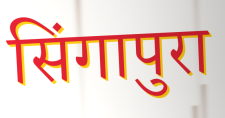
सिंगापुरा